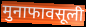
मुनाफावसूली